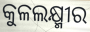
କୁଳଲକ୍ଷ୍ମୀର